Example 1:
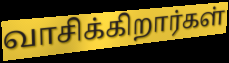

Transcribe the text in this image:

வாசிக்கிறார்கள்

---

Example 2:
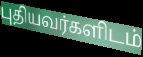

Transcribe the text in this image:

புதியவர்களிடம்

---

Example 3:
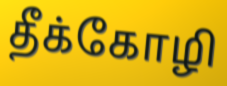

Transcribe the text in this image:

தீக்கோழி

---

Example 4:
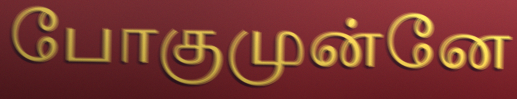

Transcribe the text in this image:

போகுமுன்னே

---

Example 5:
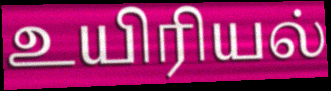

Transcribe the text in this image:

உயிரியல்